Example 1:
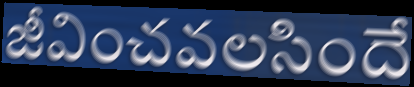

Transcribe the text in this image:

జీవించవలసిందే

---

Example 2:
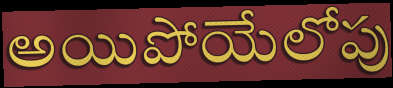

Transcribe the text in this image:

అయిపోయేలోపు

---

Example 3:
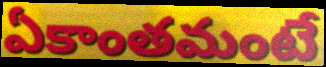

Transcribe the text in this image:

ఏకాంతమంటే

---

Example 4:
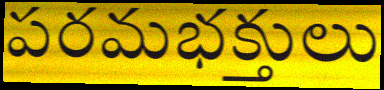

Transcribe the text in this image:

పరమభక్తులు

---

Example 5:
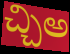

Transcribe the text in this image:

చ్చిఅ